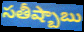
సతీష్బాబు